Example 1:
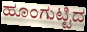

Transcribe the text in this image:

ಹೂಂಗುಟ್ಟಿದ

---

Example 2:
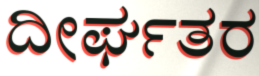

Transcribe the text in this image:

ದೀರ್ಘತರ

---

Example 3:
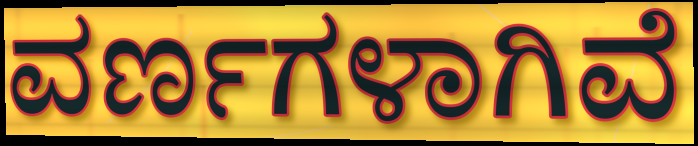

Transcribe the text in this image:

ವರ್ಣಗಳಾಗಿವೆ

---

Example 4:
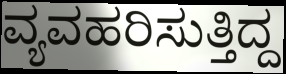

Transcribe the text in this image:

ವ್ಯವಹರಿಸುತ್ತಿದ್ದ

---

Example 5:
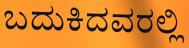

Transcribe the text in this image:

ಬದುಕಿದವರಲ್ಲಿ